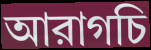
আরাগচি